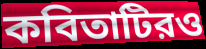
কবিতাটিরও